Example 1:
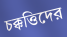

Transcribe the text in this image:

চক্কত্তিদের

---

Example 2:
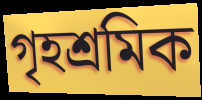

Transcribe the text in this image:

গৃহশ্রমিক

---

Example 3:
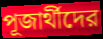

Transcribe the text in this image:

পূজার্থীদের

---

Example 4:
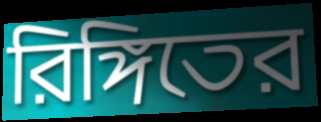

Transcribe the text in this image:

রিঙ্গিতের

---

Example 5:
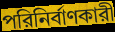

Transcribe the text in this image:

পরিনির্বাণকারী